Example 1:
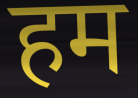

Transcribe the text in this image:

हम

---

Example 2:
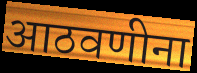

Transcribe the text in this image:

आठवणीना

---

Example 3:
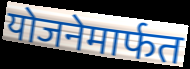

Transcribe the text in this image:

योजनेमार्फत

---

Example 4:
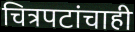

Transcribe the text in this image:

चित्रपटांचाही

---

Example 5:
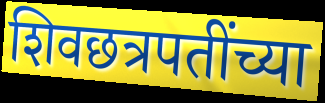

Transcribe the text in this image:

शिवछत्रपतींच्या